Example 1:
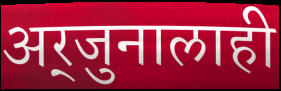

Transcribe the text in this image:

अर्जुनालाही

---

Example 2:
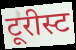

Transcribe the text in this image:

टूरीस्ट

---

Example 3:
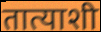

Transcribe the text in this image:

तात्याशी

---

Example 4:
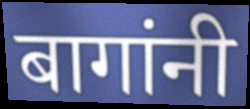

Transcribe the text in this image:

बागांनी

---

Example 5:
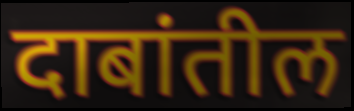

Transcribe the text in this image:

दाबांतील